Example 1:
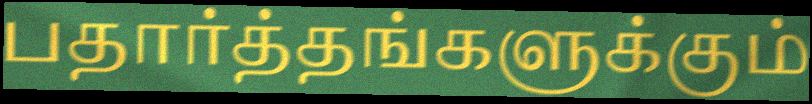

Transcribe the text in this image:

பதார்த்தங்களுக்கும்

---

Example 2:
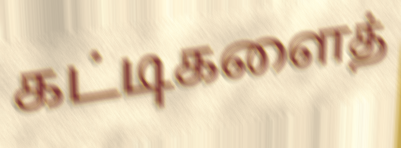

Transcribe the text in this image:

கட்டிகளைத்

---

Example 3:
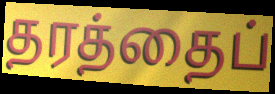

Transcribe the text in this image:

தரத்தைப்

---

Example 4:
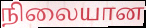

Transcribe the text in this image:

நிலையான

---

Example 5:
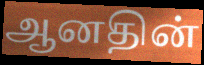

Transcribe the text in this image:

ஆனதின்